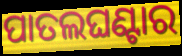
ପାତଲଘଣ୍ଟାର